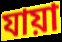
যায়া